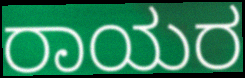
ರಾಯರ